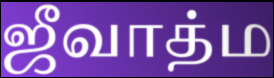
ஜீவாத்ம